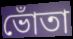
ভোঁতা